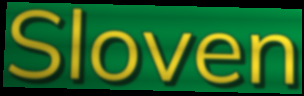
Sloven